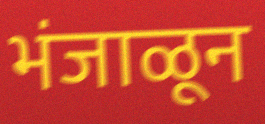
भंजाळून